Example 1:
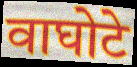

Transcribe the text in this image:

वाघोटे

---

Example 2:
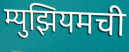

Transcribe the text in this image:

म्युझियमची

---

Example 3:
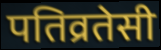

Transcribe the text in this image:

पतिव्रतेसी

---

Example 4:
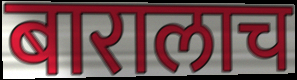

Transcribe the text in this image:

बारालाच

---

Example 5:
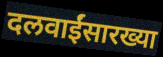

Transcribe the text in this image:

दलवाईंसारख्या